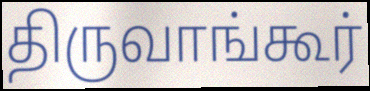
திருவாங்கூர்